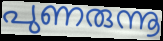
പുണരുന്നൂ